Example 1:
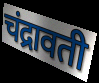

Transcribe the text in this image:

चंद्रावती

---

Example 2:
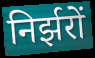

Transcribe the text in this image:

निर्झरों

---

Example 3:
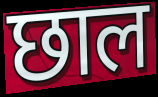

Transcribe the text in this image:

छाल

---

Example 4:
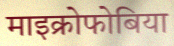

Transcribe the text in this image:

माइक्रोफोबिया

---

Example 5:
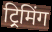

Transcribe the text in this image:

ट्रिमिंग